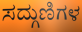
ಸದ್ಗುಣಿಗಳ